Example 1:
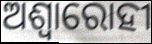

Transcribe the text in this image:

ଅଶ୍ଵାରୋହୀ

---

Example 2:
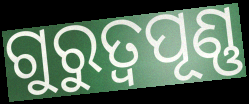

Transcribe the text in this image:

ଗୁରୁତ୍ବପୂଣ୍ଣ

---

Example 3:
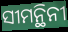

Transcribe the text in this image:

ସୀମନ୍ଥିନୀ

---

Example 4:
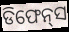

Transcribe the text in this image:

ଡିଫେନ୍‌ସ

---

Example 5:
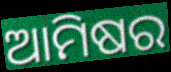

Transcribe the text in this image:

ଆମିଷର